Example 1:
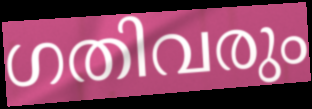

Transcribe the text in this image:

ഗതിവരും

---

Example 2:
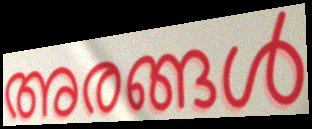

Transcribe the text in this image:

അരങ്ങൾ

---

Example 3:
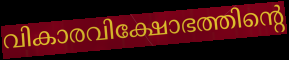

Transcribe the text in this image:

വികാരവിക്ഷോഭത്തിന്റെ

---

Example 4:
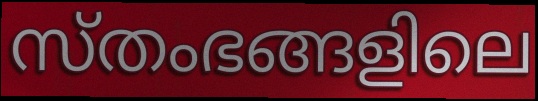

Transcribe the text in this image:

സ്തംഭങ്ങളിലെ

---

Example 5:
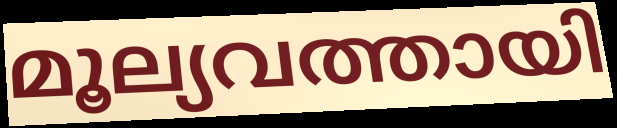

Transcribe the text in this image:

മൂല്യവത്തായി